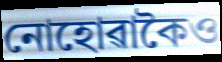
নোহোৱাকৈও